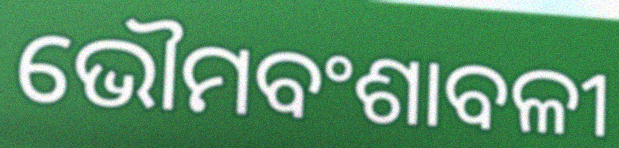
ଭୌମବଂଶାବଳୀ